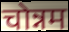
चोन्नम